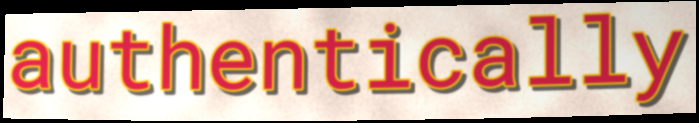
authentically